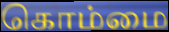
கொம்மை